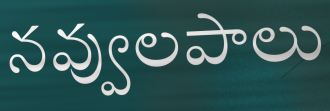
నవ్వులపాలు